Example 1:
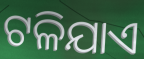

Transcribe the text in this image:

ଟଳିଯାଏ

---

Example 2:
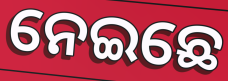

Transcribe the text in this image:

ନେଇଛେ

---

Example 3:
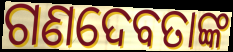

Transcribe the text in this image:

ଗଣଦେବତାଙ୍କ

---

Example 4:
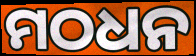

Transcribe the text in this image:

ମଠଧନ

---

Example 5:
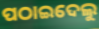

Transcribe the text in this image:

ପଠାଇଦେଲୁ